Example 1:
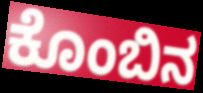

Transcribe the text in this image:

ಕೊಂಬಿನ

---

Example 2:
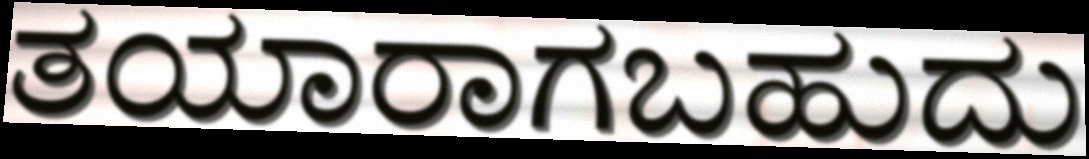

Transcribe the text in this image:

ತಯಾರಾಗಬಹುದು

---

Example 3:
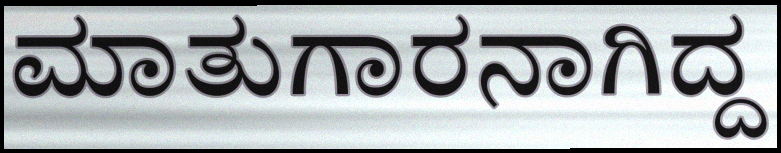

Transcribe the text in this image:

ಮಾತುಗಾರನಾಗಿದ್ದ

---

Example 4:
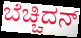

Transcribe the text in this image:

ಬೆಚ್ಚಿದನ್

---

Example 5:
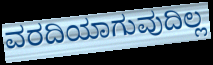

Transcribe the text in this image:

ವರದಿಯಾಗುವುದಿಲ್ಲ